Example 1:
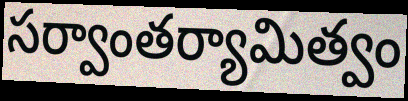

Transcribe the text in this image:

సర్వాంతర్యామిత్వం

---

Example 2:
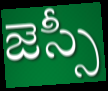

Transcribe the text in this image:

జెస్సీ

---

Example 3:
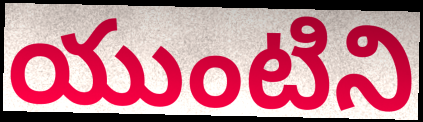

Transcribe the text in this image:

యుంటిని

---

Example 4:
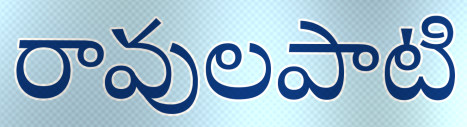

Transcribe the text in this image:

రావులపాటి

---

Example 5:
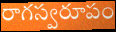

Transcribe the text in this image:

రాగస్వరూపం